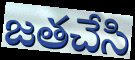
జతచేసి